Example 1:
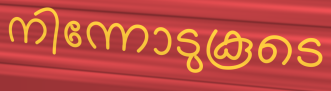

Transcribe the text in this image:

നിന്നോടുകൂടെ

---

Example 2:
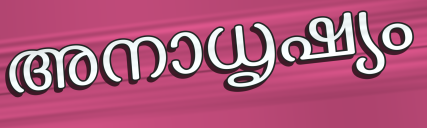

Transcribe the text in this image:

അനാധൃഷ്യം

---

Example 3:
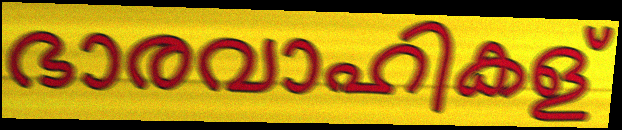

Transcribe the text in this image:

ഭാരവാഹികള്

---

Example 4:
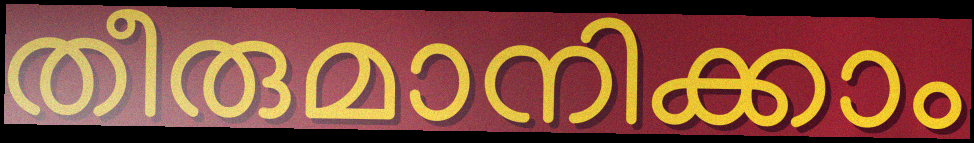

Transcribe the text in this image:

തീരുമാനിക്കാം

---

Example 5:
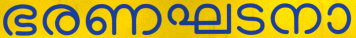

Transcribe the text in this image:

ഭരണഘടനാ